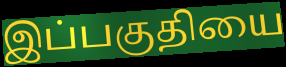
இப்பகுதியை